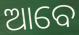
ଆବେ